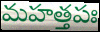
మహత్తపః